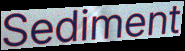
Sediment